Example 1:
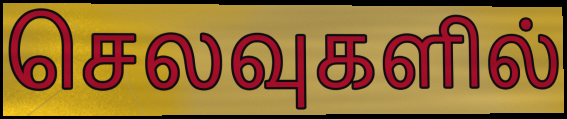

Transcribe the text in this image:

செலவுகளில்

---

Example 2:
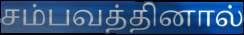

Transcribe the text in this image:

சம்பவத்தினால்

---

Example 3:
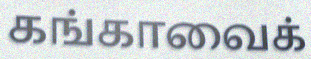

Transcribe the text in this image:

கங்காவைக்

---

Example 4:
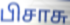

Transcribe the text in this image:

பிசாசு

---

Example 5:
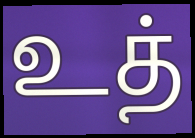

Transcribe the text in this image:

உத்